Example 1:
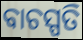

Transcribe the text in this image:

ବାଚସ୍ପତି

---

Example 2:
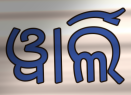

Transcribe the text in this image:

ୱାର୍ଲି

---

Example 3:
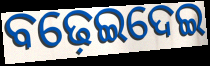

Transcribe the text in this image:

ବଢ଼େଇଦେଇ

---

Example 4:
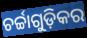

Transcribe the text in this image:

ଚର୍ଚ୍ଚାଗୁଡ଼ିକର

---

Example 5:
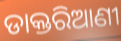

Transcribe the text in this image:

ଡାକ୍ତରିଆଣୀ